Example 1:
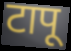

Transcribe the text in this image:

टापू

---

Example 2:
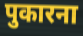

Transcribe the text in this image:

पुकारना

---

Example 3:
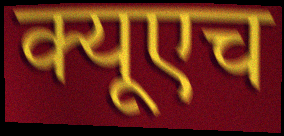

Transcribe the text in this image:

क्यूएच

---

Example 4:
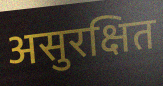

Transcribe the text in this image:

असुरक्षित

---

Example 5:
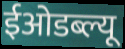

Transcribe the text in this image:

ईओडब्ल्यू